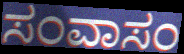
ಸಂವಾಸಂ